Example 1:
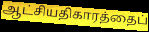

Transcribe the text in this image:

ஆட்சியதிகாரத்தைப்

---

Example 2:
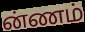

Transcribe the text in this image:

ன்ணம்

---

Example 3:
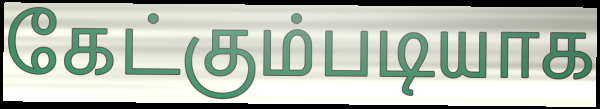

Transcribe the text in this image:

கேட்கும்படியாக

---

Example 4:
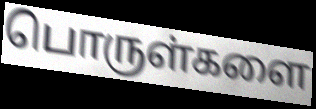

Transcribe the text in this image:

பொருள்களை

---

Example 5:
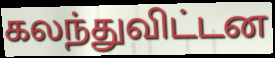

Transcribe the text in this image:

கலந்துவிட்டன